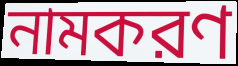
নামকরণ